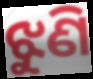
ଝୁଣି